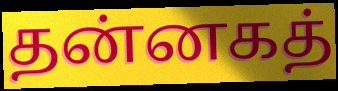
தன்னகத்